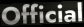
Official